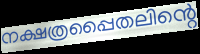
നക്ഷത്രപ്പൈതലിന്റെ